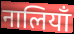
नालियाँ